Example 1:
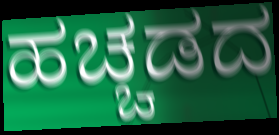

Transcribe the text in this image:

ಹಚ್ಚಡದ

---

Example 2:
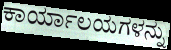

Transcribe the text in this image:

ಕಾರ್ಯಾಲಯಗಳನ್ನು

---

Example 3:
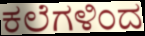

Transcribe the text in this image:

ಕಲೆಗಳಿಂದ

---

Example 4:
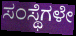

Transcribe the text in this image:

ಸಂಸ್ಥೆಗಳೇ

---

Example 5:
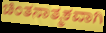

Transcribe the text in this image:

ಚಿಂತನಾತ್ಮಕವಾಗಿ